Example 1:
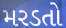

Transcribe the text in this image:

મરડતો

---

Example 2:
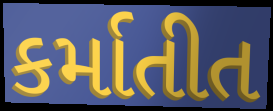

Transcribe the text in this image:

કર્માતીત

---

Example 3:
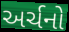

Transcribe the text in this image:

અર્ચનો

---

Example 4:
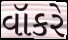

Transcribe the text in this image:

વૉકરે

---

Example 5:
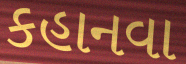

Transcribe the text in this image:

કહાનવા